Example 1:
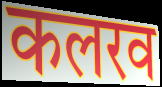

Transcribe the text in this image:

कलरव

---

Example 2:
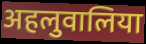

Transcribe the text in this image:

अहलुवालिया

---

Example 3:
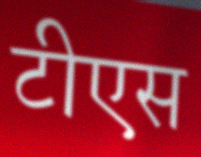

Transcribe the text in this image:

टीएस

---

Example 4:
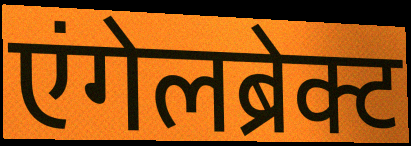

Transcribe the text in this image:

एंगेलब्रेक्ट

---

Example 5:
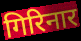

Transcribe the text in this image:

गिरिनार